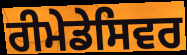
ਰੀਮੇਡੇਸਿਵਰ